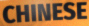
CHINESE